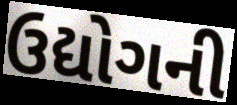
ઉદ્યોગની